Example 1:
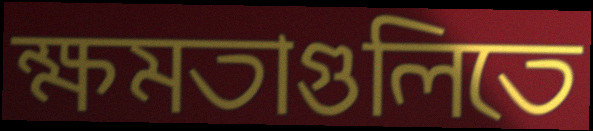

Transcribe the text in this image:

ক্ষমতাগুলিতে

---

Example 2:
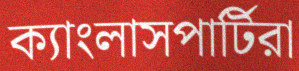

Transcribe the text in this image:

ক্যাংলাসপার্টিরা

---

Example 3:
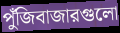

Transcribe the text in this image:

পুঁজিবাজারগুলো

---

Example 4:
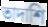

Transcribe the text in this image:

তাদাশি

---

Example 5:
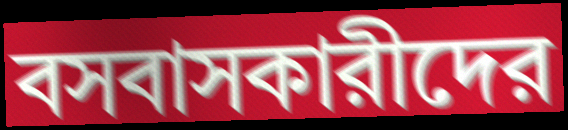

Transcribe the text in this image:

বসবাসকারীদের